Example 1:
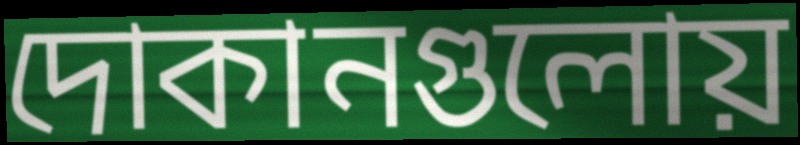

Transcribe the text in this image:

দোকানগুলোয়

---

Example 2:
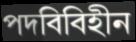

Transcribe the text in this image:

পদবিবিহীন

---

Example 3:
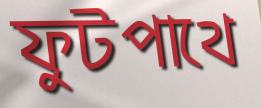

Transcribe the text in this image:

ফুটপাথে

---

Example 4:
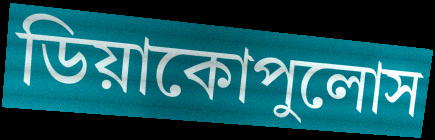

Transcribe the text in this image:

ডিয়াকোপুলোস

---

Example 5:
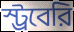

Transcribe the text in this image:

স্ট্রবেরি